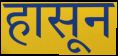
हासून